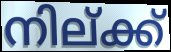
നില്ക്ക്